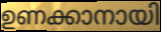
ഉണക്കാനായി